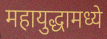
महायुद्धामध्ये